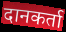
दानकर्ता